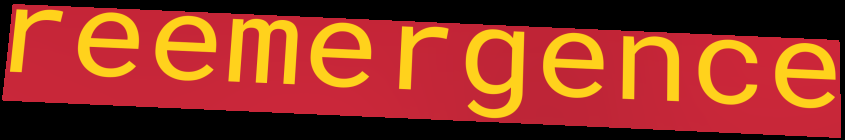
reemergence